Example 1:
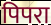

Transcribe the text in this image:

पिपरा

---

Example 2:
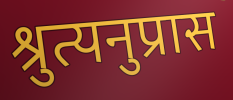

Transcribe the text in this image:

श्रुत्यनुप्रास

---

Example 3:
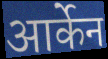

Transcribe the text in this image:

आर्केन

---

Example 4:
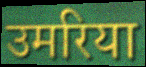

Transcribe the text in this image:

उमरिया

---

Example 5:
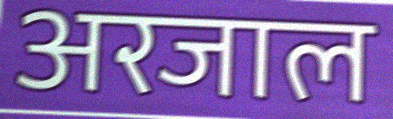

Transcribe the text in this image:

अरजाल